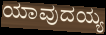
ಯಾವುದಯ್ಯ